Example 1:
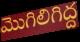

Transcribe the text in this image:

మొగిలిగిద్ద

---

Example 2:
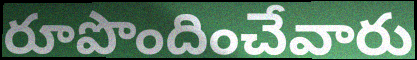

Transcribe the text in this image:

రూపొందించేవారు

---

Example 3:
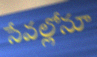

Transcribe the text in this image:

సేవల్లోనూ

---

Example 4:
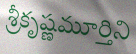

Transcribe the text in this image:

శ్రీకృష్ణమూర్తిని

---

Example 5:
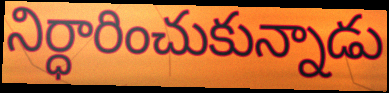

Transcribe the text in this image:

నిర్ధారించుకున్నాడు